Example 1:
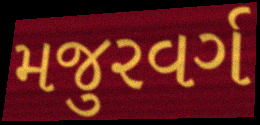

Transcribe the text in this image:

મજુરવર્ગ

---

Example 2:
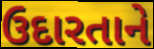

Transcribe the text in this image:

ઉદારતાને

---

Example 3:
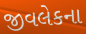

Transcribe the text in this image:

જીવલેકના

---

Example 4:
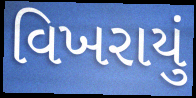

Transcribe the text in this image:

વિખરાયું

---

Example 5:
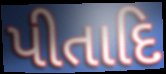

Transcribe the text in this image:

પીતાદિ